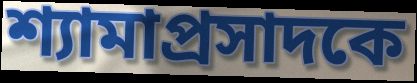
শ্যামাপ্রসাদকে